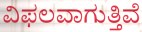
ವಿಫಲವಾಗುತ್ತಿವೆ